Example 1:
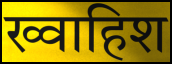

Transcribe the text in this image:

ख्वाहिश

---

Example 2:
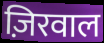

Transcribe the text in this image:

ज़िरवाल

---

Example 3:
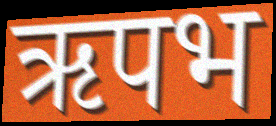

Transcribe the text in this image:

ऋपभ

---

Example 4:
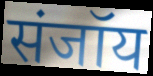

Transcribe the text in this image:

संजॉय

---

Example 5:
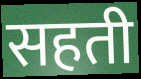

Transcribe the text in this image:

सहती